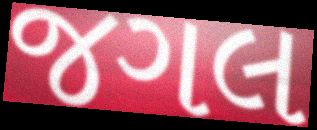
જગલ